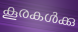
കൂരകൾക്കു